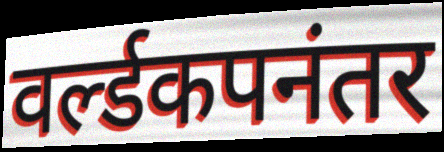
वर्ल्डकपनंतर